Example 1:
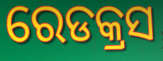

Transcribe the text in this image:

ରେଡକ୍ରସ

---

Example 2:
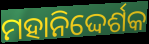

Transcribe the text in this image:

ମହାନିଦ୍ଦେର୍ଶକ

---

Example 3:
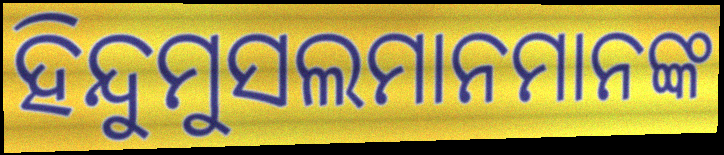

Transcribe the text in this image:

ହିନ୍ଦୁମୁସଲମାନମାନଙ୍କ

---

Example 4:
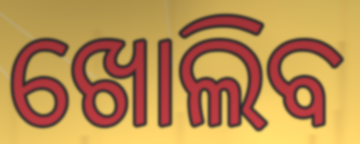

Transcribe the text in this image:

ଖୋଲିବ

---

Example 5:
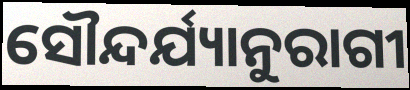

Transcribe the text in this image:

ସୌନ୍ଦର୍ଯ୍ୟାନୁରାଗୀ